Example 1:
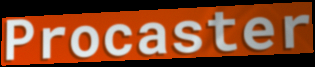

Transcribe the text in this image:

Procaster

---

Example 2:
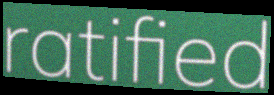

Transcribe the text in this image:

ratified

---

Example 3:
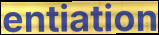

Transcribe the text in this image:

entiation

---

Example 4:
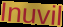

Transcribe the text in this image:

Inuvil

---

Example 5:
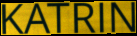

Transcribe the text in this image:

KATRIN